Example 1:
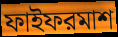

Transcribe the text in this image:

ফাইফরমাশ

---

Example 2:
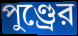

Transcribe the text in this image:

পুণ্ড্রের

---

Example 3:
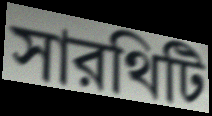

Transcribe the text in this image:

সারথিটি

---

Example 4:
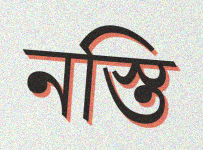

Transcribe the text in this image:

নস্তি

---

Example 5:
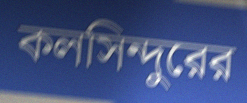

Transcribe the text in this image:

কলসিন্দুরের